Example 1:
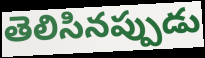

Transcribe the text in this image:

తెలిసినప్పుడు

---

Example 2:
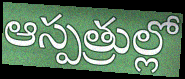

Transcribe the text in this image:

ఆస్పత్రుల్లో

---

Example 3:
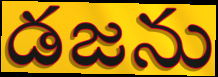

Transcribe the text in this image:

డజను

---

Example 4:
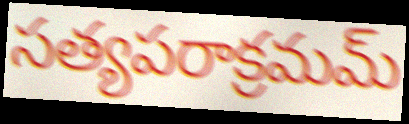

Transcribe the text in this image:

సత్యపరాక్రమమ్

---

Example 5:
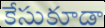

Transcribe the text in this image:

కేసుకూడా